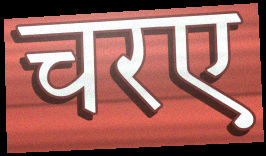
चरए